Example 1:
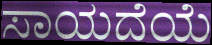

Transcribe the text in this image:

ಸಾಯದೆಯೆ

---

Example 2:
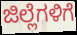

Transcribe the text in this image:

ಜಿಲ್ಲೆಗಳಿಗೆ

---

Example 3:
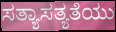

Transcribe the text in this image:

ಸತ್ಯಾಸತ್ಯತೆಯು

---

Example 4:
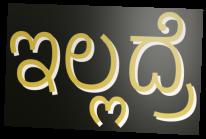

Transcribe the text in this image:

ಇಲ್ಲದ್ರೆ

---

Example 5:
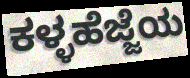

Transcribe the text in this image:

ಕಳ್ಳಹೆಜ್ಜೆಯ